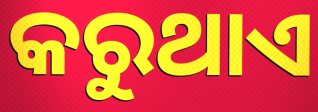
କରୁଥାଏ